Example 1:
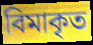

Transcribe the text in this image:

বিমাকৃত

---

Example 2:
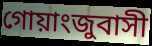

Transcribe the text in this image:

গোয়াংজুবাসী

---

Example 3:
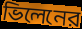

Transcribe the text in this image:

ভিলেনের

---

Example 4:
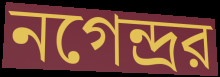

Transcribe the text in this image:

নগেন্দ্রর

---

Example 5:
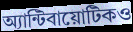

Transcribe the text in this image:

অ্যান্টিবায়োটিকও